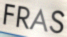
FRAS